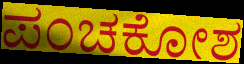
ಪಂಚಕೋಶ